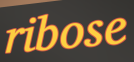
ribose